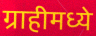
ग्राहीमध्ये